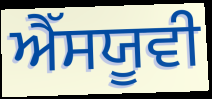
ਐੱਸਯੂਵੀ